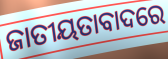
ଜାତୀୟତାବାଦରେ